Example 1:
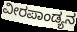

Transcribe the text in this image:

ವೀರಪಾಂಡ್ಯನ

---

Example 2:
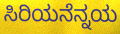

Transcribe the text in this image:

ಸಿರಿಯನೆನ್ನಯ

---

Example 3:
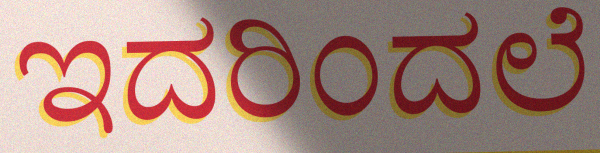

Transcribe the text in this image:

ಇದರಿಂದಲೆ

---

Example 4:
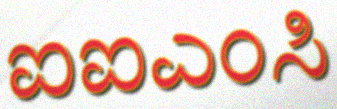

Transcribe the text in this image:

ಐಐಎಂಸಿ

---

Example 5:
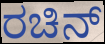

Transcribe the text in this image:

ರಚಿನ್